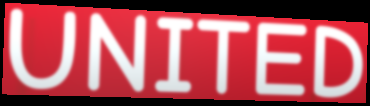
UNITED